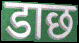
डाछ